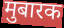
मुबारक